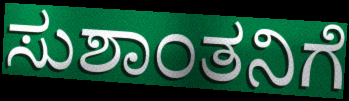
ಸುಶಾಂತನಿಗೆ